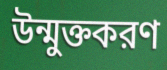
উন্মুক্তকরণ